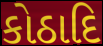
કોઠાદિ